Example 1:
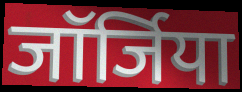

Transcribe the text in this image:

जॉर्जिया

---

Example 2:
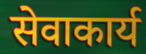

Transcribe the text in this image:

सेवाकार्य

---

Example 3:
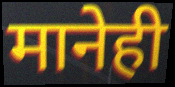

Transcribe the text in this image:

मानेही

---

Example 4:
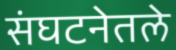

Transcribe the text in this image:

संघटनेतले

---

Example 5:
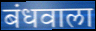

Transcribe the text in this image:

बंधवाला